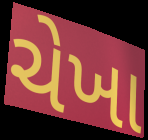
ચેખા